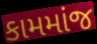
કામમાંજ